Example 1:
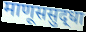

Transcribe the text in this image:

माणूससुद्धा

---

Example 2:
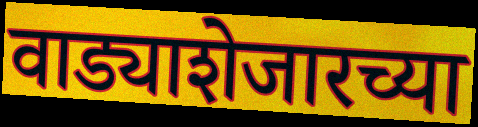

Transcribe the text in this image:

वाड्याशेजारच्या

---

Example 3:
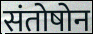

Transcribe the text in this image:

संतोषोन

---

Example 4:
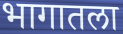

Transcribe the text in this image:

भागातला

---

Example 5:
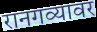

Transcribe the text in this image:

रानगव्यावर